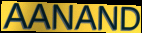
AANAND